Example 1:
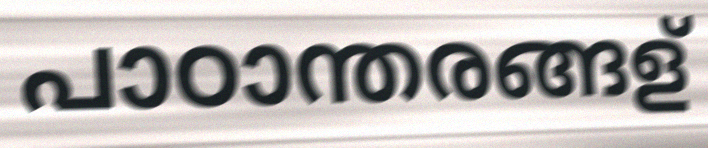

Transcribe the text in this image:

പാഠാന്തരങ്ങള്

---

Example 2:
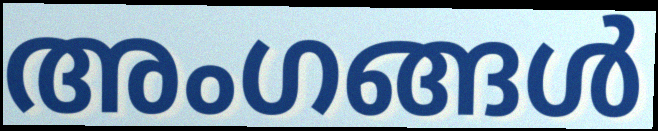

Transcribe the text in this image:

അംഗങ്ങൾ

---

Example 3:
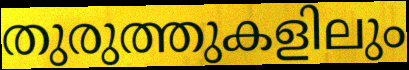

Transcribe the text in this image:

തുരുത്തുകളിലും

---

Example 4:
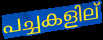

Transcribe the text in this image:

പച്ചകളില്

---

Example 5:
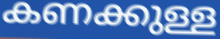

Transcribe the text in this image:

കണക്കുള്ള